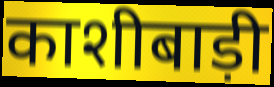
काशीबाड़ी